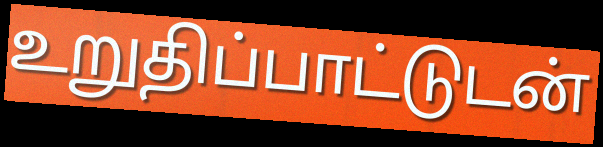
உறுதிப்பாட்டுடன்